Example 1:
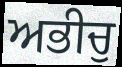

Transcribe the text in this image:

ਅਭੀਚੁ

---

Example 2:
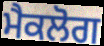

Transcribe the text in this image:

ਮੈਕਲੋਗ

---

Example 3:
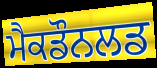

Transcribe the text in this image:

ਮੈਕਡੌਨਲਡ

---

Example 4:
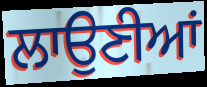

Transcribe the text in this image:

ਲਾਉਣੀਆਂ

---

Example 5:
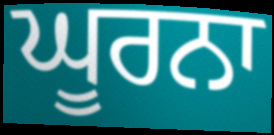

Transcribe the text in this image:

ਘੂਰਨਾ